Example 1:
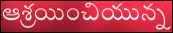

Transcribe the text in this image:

ఆశ్రయించియున్న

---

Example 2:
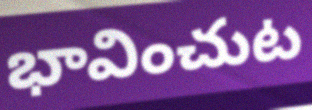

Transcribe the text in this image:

భావించుట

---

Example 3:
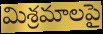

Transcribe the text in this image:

మిశ్రమాలపై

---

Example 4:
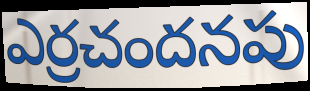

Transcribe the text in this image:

ఎర్రచందనపు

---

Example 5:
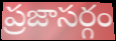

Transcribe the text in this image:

ప్రజాసర్గం